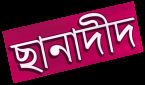
ছানাদীদ